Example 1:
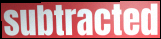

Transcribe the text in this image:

subtracted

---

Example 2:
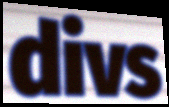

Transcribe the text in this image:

divs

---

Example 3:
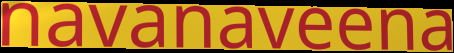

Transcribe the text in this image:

navanaveena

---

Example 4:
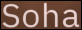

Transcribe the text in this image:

Soha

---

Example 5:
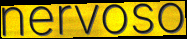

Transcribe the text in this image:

nervoso